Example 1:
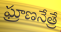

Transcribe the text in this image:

ఘ్రాణనేత్రే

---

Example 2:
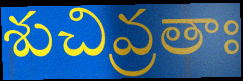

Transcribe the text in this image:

శుచివ్రతాః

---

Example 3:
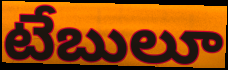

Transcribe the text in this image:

టేబులూ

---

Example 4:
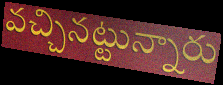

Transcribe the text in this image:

వచ్చినట్టున్నారు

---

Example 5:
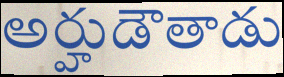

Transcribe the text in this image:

అర్హుడౌతాడు